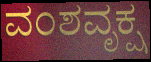
ವಂಶವೃಕ್ಷ